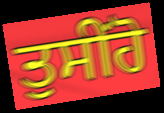
ਤੁਸੀਂਹੋ